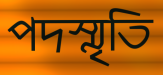
পদস্মৃতি